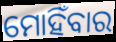
ମୋହିଁବାର